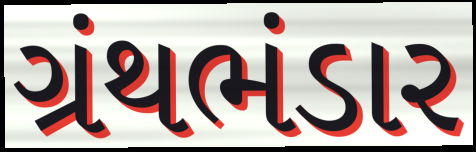
ગ્રંથભંડાર